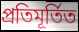
প্ৰতিমূৰ্তিত